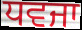
ਧਵਜਾ